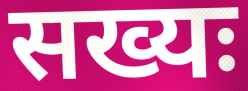
सख्यः